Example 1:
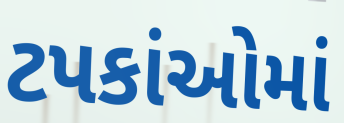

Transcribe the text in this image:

ટપકાંઓમાં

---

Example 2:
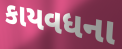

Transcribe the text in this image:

કાયવધના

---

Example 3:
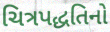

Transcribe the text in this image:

ચિત્રપદ્ધતિનો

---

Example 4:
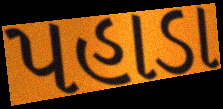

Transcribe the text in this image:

પહાડા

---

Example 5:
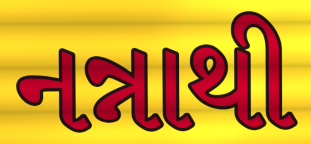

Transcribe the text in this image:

નન્નાથી